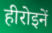
हीरोइनें